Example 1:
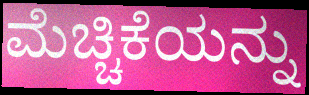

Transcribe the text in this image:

ಮೆಚ್ಚಿಕೆಯನ್ನು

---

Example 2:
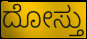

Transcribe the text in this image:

ದೋಸ್ತು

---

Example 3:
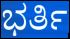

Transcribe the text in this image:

ಭರ್ತಿ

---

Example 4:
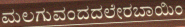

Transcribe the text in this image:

ಮಲಗುವಂದದಲೇರಬಾಯಿಂ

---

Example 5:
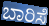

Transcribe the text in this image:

ಬಾರಿಸೆ